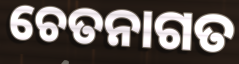
ଚେତନାଗତ